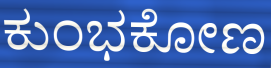
ಕುಂಭಕೋಣ